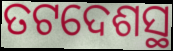
ତଟଦେଶସ୍ଥ